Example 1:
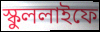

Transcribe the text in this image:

স্কুললাইফে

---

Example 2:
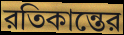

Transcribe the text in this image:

রতিকান্তের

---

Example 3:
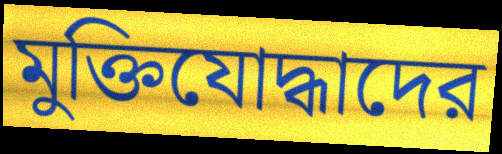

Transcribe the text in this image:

মুক্তিযোদ্ধাদের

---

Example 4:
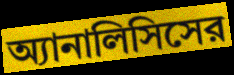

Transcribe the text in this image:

অ্যানালিসিসের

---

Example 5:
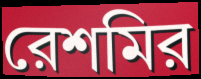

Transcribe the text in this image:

রেশমির